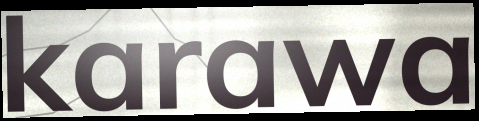
karawa